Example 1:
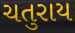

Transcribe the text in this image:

ચતુરાય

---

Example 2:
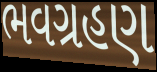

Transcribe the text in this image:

ભવગ્રહણ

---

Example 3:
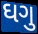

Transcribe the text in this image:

ઘગુ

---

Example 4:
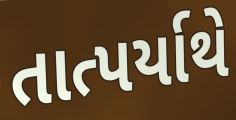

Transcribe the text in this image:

તાત્પર્યાથે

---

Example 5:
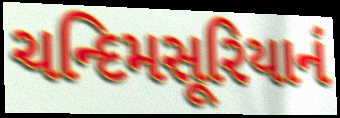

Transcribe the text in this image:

ચન્દિમસૂરિયાનં